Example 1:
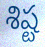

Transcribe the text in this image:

శిష్ట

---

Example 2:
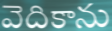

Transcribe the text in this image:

వెదికాను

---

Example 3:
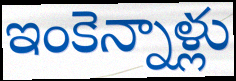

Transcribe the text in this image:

ఇంకెన్నాళ్లు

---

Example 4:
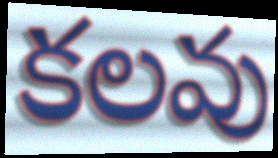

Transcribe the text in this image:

కలవు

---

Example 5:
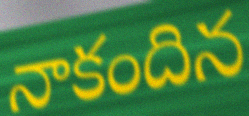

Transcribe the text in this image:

నాకందిన